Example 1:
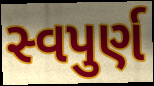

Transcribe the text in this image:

સ્વપુર્ણ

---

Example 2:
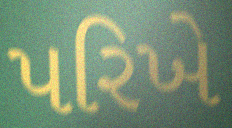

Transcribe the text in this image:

પરિખે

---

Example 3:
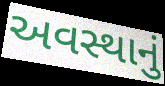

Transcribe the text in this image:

અવસ્થાનું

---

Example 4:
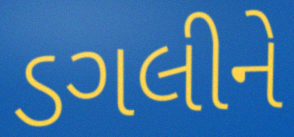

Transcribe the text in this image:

ડગલીને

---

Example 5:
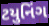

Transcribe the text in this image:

ટયુનિંગ